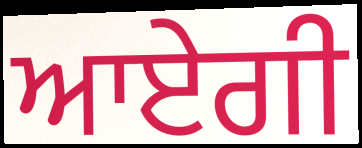
ਆਏਗੀ